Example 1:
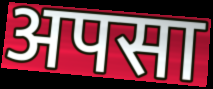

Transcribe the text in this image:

अपसा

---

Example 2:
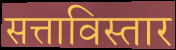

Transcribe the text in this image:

सत्ताविस्तार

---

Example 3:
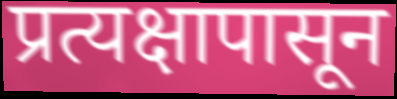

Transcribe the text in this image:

प्रत्यक्षापासून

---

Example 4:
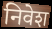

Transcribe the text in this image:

निवेश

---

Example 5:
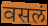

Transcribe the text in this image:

वसलं